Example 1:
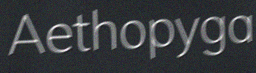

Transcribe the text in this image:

Aethopyga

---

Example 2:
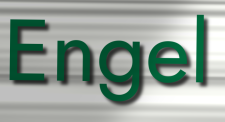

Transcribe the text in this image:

Engel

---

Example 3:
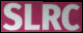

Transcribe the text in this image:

SLRC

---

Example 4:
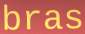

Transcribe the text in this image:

bras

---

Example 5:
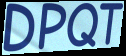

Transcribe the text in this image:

DPQT